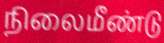
நிலைமீண்டு